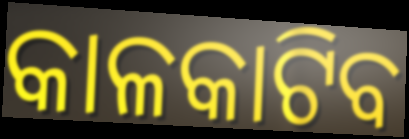
କାଳକାଟିବ